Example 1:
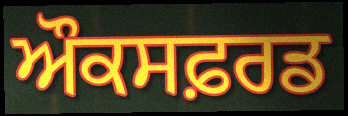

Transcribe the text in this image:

ਔਕਸਫ਼ਰਡ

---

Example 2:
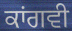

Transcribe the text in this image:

ਕਾਂਗਵੀ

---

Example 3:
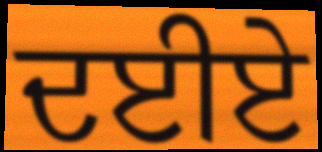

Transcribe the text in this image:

ਦਈਏ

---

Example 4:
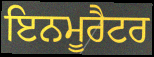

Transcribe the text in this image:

ਇਨਮੂਰੈਟਰ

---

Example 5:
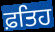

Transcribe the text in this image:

ਫ਼ਤਿਹ